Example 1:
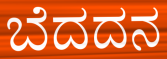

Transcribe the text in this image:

ಬೆದದನ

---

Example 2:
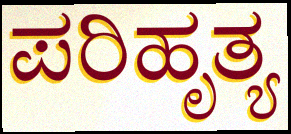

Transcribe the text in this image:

ಪರಿಹೃತ್ಯ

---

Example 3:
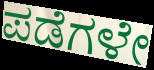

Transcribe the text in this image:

ಪಡೆಗಳೇ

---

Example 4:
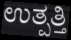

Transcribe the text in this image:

ಉತ್ಪತ್ತಿ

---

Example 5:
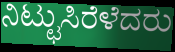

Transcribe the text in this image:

ನಿಟ್ಟುಸಿರೆಳೆದರು